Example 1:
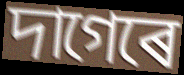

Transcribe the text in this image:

দাগেৰে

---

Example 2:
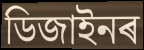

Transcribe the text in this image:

ডিজাইনৰ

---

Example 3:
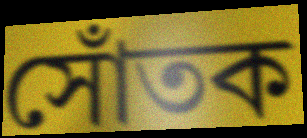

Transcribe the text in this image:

সোঁতক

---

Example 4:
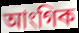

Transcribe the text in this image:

আংগিক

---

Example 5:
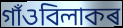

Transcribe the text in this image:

গাঁওবিলাকৰ